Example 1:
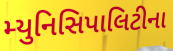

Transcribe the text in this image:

મ્યુનિસિપાલિટીના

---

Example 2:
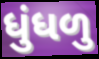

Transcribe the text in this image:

ધુંધળુ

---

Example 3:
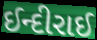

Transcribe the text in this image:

ઈન્દીરાઈ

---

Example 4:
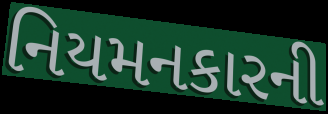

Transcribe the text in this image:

નિયમનકારની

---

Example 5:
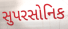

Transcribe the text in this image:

સુપરસોનિક